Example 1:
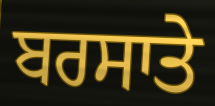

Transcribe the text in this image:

ਬਰਸਾਤੇ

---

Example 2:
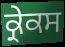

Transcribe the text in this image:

ਕ੍ਰੇਕਸ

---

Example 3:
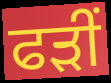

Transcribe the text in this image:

ਫੜੀਂ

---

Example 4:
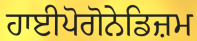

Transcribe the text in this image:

ਹਾਈਪੋਗੋਨੇਡਿਜ਼ਮ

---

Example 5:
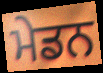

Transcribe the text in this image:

ਮੇਡਨ